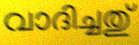
വാദിച്ചതു്